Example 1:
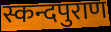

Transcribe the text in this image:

स्कन्दपुराण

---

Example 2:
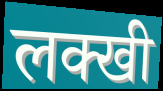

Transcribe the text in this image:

लक्खी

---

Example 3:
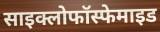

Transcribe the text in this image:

साइक्लोफॉस्फेमाइड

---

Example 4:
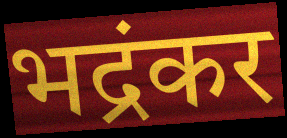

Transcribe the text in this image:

भद्रंकर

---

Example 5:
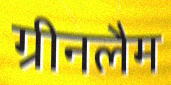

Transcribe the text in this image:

ग्रीनलैम